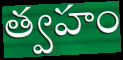
త్వహం